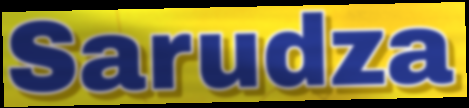
Sarudza